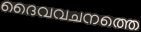
ദൈവവചനത്തെ